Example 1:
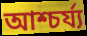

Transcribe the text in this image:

আশ্চর্য্য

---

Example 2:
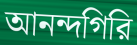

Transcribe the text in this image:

আনন্দগিরি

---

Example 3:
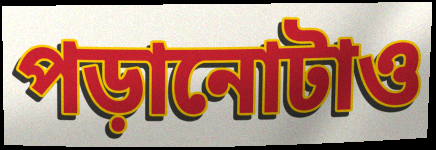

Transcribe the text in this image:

পড়ানোটাও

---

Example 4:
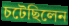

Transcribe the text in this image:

চটেছিলেন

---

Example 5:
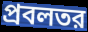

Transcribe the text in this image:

প্রবলতর